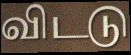
விடடு